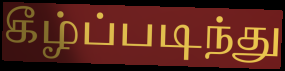
கீழ்ப்படிந்து